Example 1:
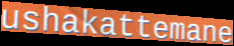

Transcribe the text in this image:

ushakattemane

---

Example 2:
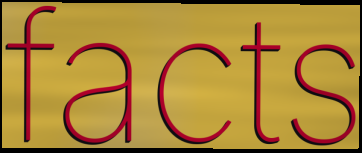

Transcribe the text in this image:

facts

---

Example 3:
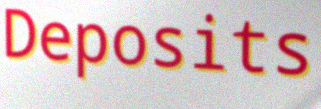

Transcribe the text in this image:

Deposits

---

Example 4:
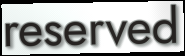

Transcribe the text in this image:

reserved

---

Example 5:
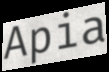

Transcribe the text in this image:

Apia